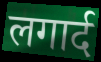
लगार्द